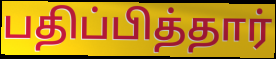
பதிப்பித்தார்